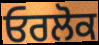
ਓਰਲੋਕ